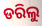
ଡରିଲୁ